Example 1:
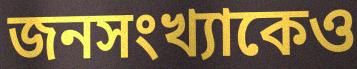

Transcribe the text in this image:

জনসংখ্যাকেও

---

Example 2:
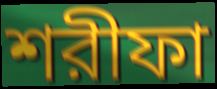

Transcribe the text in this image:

শরীফা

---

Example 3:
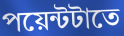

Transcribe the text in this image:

পয়েন্টটাতে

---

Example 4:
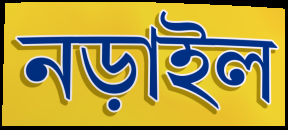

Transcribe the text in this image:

নড়াইল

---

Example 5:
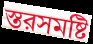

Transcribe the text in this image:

স্তরসমষ্টি